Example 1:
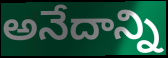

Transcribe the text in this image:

అనేదాన్ని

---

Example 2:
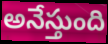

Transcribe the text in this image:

అనేస్తుంది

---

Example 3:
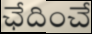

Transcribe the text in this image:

ఛేదించే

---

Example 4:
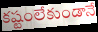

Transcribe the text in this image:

కష్టంలేకుండానే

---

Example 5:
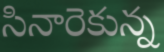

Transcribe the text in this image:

సినారెకున్న